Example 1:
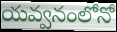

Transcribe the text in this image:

యవ్వనంలోనో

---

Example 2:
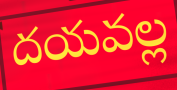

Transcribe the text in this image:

దయవల్ల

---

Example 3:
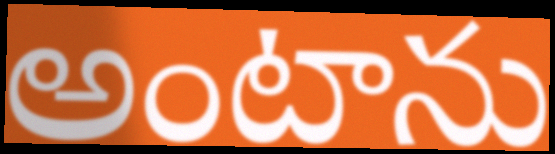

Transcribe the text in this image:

అంటాను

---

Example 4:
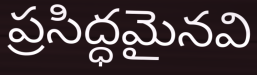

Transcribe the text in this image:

ప్రసిద్ధమైనవి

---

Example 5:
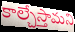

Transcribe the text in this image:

కాల్చేస్తామని